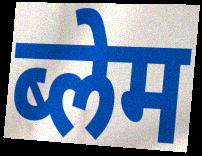
ब्लेम